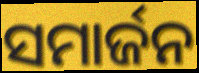
ସମାର୍ଜନ